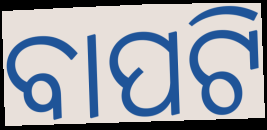
ବାପଟି